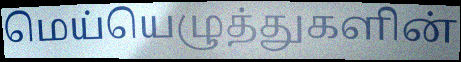
மெய்யெழுத்துகளின்